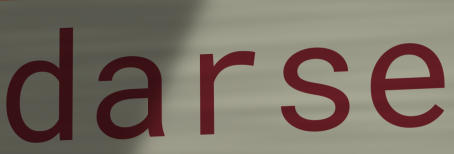
darse